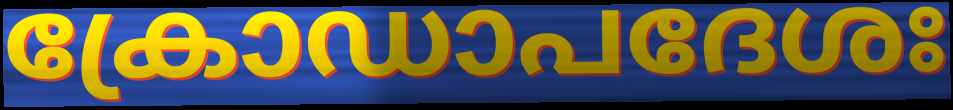
ക്രോഡാപദേശഃ